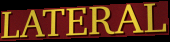
LATERAL